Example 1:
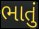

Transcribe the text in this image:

ભાતું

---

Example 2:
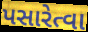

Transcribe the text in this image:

પસારેત્વા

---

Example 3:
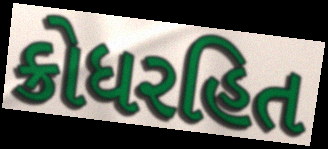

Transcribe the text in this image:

ક્રોધરહિત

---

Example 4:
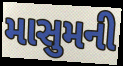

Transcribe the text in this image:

માસુમની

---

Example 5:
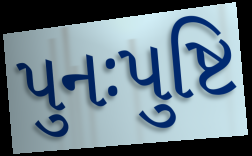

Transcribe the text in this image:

પુનઃપુષ્ટિ